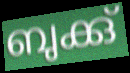
ബുക്കു്